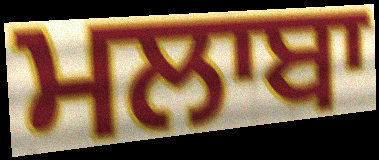
ਮਲਾਬਾ